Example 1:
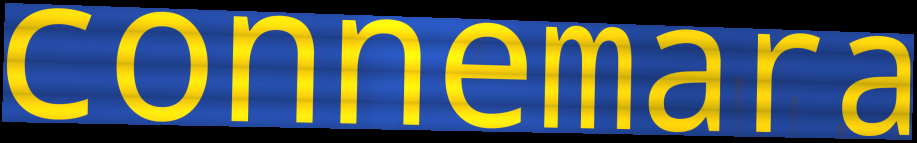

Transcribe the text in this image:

connemara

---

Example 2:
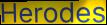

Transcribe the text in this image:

Herodes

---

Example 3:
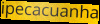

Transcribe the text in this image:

ipecacuanha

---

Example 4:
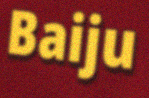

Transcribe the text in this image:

Baiju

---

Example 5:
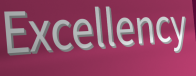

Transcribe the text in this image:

Excellency